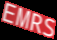
EMRS